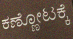
ಕಣ್ಣೋಟಕ್ಕೆ